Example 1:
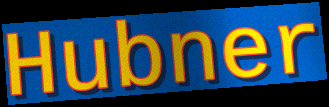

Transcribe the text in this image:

Hubner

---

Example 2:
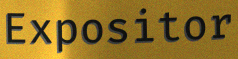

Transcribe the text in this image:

Expositor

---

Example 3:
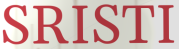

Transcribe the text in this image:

SRISTI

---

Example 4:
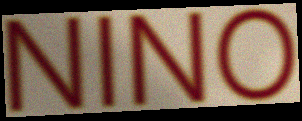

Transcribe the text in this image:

NINO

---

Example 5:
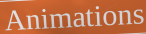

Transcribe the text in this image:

Animations